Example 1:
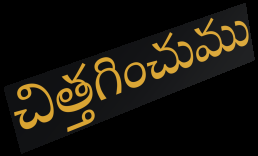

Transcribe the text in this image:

చిత్తగించుము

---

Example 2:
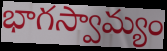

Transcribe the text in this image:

భాగస్వామ్యం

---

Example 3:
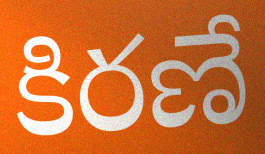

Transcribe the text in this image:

కిరణే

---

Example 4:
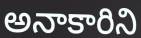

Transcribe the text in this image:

అనాకారిని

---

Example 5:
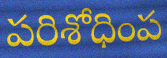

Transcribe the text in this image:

పరిశోధింప